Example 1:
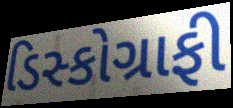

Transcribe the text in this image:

ડિસ્કોગ્રાફી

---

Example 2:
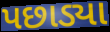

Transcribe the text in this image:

પછાડ્યા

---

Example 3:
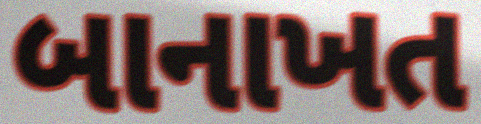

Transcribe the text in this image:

બાનાખત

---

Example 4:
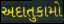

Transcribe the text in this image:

અદાતુકામો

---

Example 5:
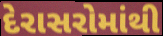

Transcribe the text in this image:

દેરાસરોમાંથી